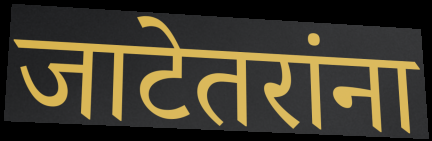
जाटेतरांना